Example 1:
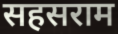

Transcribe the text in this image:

सहसराम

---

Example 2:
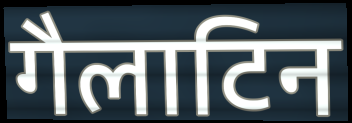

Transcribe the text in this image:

गैलाटिन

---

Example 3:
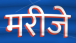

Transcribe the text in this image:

मरीजे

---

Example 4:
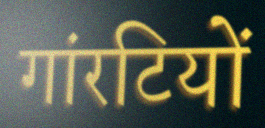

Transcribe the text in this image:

गांरटियों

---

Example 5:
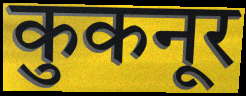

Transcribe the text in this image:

कुकनूर